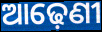
ଆଢ଼େଣୀ